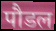
पौडल